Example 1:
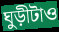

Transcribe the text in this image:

ঘুড়ীটাও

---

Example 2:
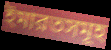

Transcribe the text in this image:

ইমারতসমূহ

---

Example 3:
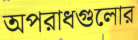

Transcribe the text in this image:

অপরাধগুলোর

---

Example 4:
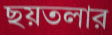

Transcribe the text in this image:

ছয়তলার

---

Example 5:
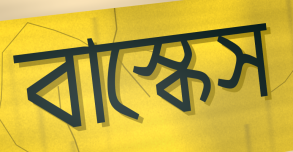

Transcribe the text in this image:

বাস্কেস